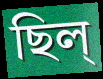
ছিল্